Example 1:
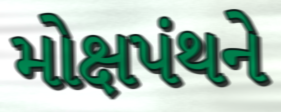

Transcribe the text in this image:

મોક્ષપંથને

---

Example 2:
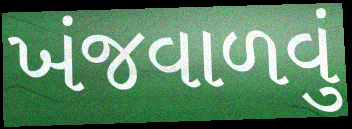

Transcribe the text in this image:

ખંજવાળવું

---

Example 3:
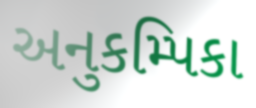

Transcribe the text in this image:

અનુકમ્પિકા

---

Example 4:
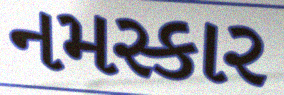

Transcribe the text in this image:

નમસ્કાર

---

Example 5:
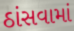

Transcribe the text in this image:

ઠાંસવામાં